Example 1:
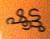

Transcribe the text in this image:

ഷൂട്ടു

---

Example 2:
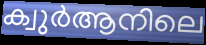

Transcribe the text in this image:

ക്വുർആനിലെ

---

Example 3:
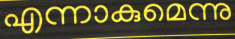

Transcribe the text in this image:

എന്നാകുമെന്നു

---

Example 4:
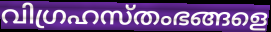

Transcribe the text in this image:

വിഗ്രഹസ്തംഭങ്ങളെ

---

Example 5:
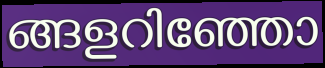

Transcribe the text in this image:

ങ്ങളറിഞ്ഞോ